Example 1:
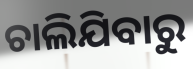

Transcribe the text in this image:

ଚାଲିଯିବାରୁ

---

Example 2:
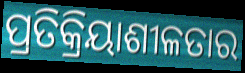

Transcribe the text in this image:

ପ୍ରତିକ୍ରିୟାଶୀଳତାର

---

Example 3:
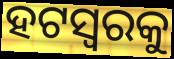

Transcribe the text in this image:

ହଟସ୍ଵରକୁ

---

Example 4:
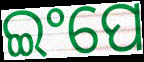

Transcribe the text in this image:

ଇଂପେ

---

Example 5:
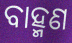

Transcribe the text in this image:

ବାହ୍ମଣ